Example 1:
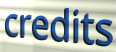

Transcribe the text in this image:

credits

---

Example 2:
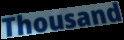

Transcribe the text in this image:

Thousand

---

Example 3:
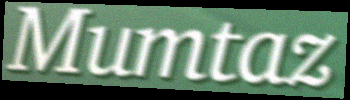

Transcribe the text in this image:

Mumtaz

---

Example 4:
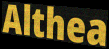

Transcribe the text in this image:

Althea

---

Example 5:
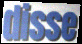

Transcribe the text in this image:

disse